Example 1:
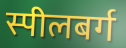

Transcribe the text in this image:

स्पीलबर्ग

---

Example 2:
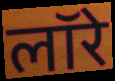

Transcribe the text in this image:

लॉरे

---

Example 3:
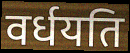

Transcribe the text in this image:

वर्धयति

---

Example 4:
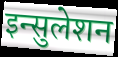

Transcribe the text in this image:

इन्सुलेशन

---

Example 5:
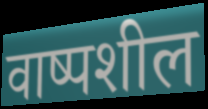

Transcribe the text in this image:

वाष्पशील